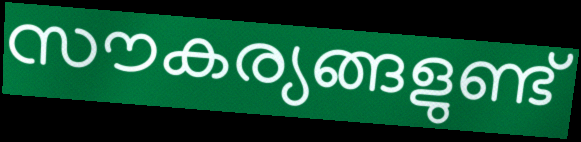
സൗകര്യങ്ങളുണ്ട്